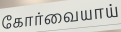
கோர்வையாய்